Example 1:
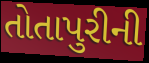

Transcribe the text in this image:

તોતાપુરીની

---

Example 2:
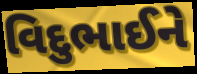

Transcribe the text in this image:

વિદુભાઈને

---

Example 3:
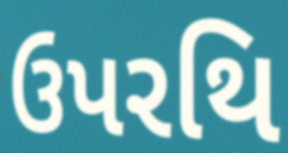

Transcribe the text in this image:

ઉપરથિ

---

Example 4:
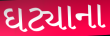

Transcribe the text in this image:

ઘટ્યાના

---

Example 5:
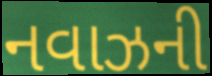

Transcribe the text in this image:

નવાઝની